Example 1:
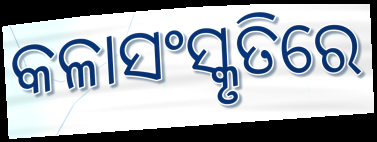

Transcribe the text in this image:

କଳାସଂସ୍କୃତିରେ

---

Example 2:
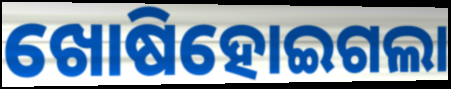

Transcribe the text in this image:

ଖୋଷିହୋଇଗଲା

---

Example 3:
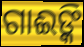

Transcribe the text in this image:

ଗାଈଙ୍କି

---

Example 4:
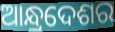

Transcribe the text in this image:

ଆନ୍ଧ୍ରଦେଶର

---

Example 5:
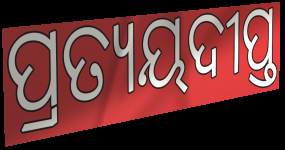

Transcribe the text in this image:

ପ୍ରତ୍ୟୟଦୀପ୍ତ